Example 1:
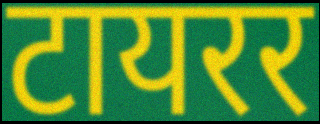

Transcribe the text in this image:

टायरर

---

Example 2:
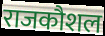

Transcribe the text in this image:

राजकौशल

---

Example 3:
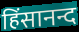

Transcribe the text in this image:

हिंसानन्द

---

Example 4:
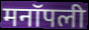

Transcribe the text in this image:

मनॉपली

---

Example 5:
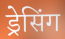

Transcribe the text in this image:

ड्रेसिंग